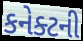
કનેક્ટની